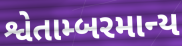
શ્વેતામ્બરમાન્ય